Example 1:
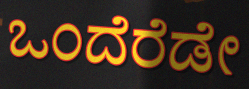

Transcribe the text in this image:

ಒಂದೆರೆಡೇ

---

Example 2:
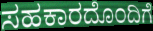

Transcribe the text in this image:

ಸಹಕಾರದೊಂದಿಗೆ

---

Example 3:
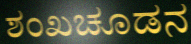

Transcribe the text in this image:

ಶಂಖಚೂಡನ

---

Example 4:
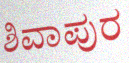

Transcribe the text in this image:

ಶಿವಾಪುರ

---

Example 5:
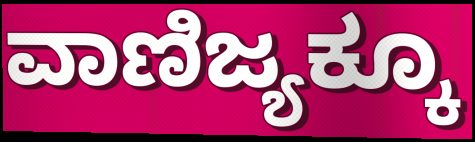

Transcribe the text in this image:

ವಾಣಿಜ್ಯಕ್ಕೂ